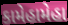
કામેહામેહા